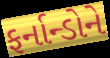
ફર્નાન્ડોને